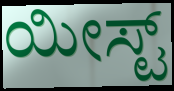
ಯೀಸ್ಟ್